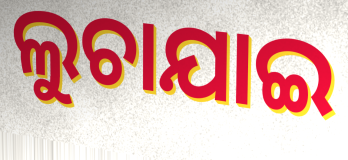
ଲୁଚାଯାଇ